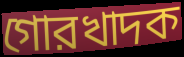
গোরখাদক